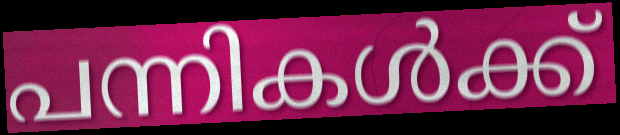
പന്നികൾക്ക്